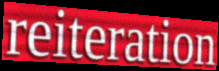
reiteration